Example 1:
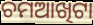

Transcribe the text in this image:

ଚମଆଖିଟା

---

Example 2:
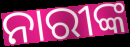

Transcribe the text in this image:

ନାରୀଙ୍କ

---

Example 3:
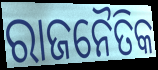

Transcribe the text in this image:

ରାଜନୈତିକ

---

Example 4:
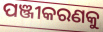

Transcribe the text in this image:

ପଞ୍ଜୀକରଣକୁ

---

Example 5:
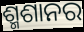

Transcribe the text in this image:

ଶ୍ମଶାନର